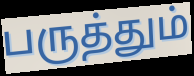
பருத்தும்